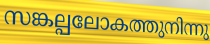
സങ്കല്പലോകത്തുനിന്നു